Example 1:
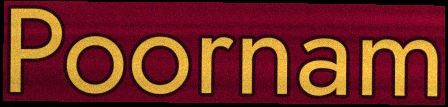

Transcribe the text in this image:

Poornam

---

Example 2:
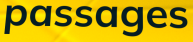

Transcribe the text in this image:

passages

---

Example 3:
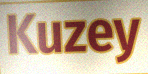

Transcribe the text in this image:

Kuzey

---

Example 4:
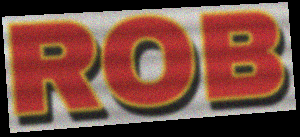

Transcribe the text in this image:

ROB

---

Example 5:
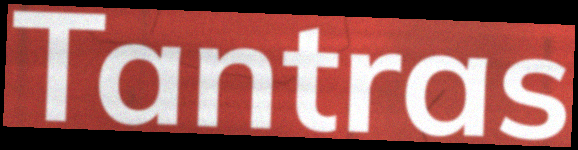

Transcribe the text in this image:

Tantras